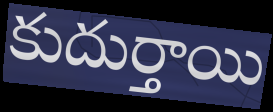
కుదుర్తాయి